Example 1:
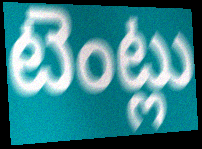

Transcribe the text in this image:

టెంట్లు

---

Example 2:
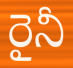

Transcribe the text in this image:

రైనీ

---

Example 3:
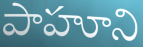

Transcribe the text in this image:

పాహూని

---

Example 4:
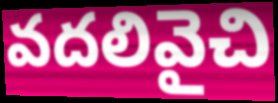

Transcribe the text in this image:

వదలివైచి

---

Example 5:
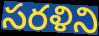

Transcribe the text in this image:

సరళిని